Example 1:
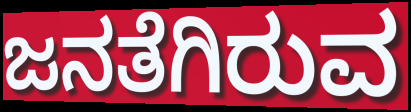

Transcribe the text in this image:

ಜನತೆಗಿರುವ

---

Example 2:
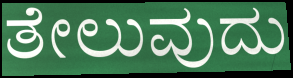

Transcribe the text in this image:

ತೇಲುವುದು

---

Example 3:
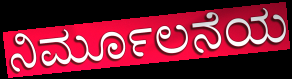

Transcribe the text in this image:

ನಿರ್ಮೂಲನೆಯ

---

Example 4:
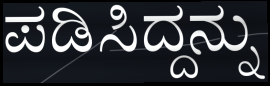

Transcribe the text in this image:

ಪಡಿಸಿದ್ದನ್ನು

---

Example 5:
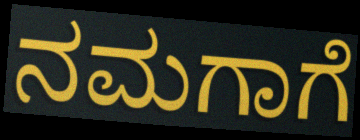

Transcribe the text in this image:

ನಮಗಾಗೆ